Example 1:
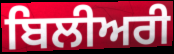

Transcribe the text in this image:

ਬਿਲੀਅਰੀ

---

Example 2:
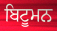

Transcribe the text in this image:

ਬਿਟੂਮਨ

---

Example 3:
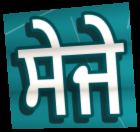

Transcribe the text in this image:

ਸੇਜੇ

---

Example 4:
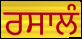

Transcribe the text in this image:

ਰਸਾਲੰ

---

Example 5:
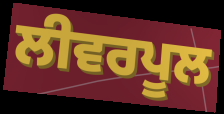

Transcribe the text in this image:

ਲੀਵਰਪੂਲ